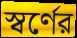
স্বর্ণের